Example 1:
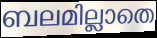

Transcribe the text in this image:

ബലമില്ലാതെ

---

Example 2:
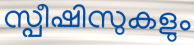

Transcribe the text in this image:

സ്പീഷിസുകളും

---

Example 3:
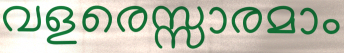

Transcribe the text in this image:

വളരെസ്സാരമാം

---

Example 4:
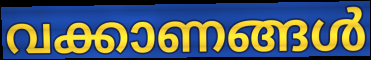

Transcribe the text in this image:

വക്കാണങ്ങൾ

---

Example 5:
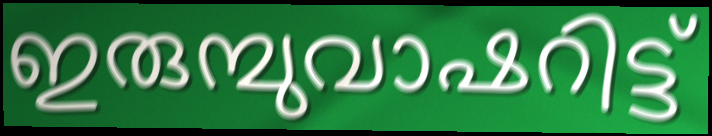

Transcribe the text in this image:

ഇരുമ്പുവാഷറിട്ട്